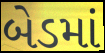
બેડમાં